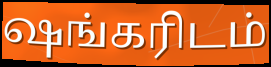
ஷங்கரிடம்